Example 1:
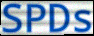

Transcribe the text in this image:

SPDs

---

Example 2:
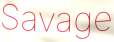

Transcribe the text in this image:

Savage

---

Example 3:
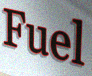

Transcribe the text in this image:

Fuel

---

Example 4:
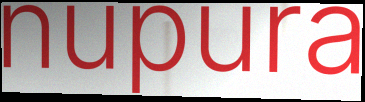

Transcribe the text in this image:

nupura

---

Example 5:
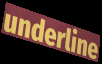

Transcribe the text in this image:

underline